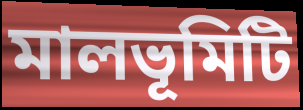
মালভূমিটি